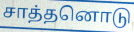
சாத்தனொடு